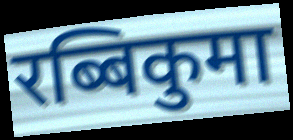
रब्बिकुमा